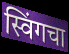
स्विंगचा